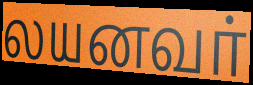
லயனவர்